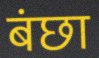
बंछा